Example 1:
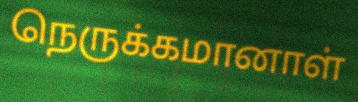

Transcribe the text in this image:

நெருக்கமானாள்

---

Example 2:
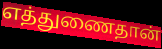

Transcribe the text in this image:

எத்துணைதான்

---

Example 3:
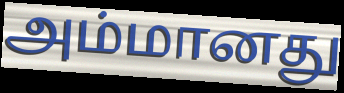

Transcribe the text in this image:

அம்மானது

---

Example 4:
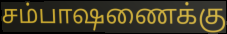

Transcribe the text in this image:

சம்பாஷணைக்கு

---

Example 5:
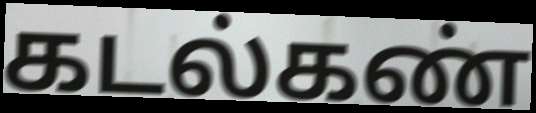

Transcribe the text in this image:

கடல்கண்